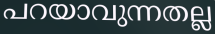
പറയാവുന്നതല്ല